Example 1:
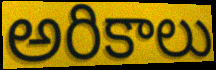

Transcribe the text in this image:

అరికాలు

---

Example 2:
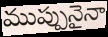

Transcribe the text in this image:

ముప్పునైనా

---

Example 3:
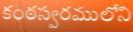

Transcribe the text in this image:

కంఠస్వరములోని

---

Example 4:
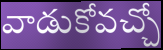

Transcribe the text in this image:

వాడుకోవచ్చో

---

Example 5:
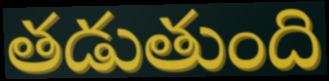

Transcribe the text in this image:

తడుతుంది